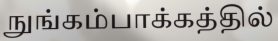
நுங்கம்பாக்கத்தில்